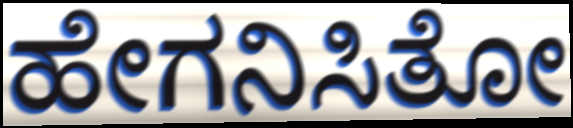
ಹೇಗನಿಸಿತೋ